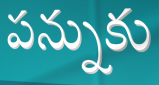
పన్నుకు